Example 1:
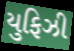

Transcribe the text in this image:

યુફિઝી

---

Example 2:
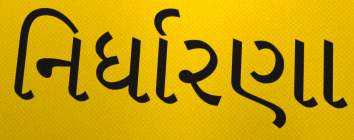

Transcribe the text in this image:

નિર્ધારણા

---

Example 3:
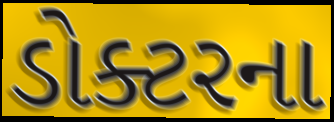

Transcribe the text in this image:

ડોક્ટરના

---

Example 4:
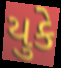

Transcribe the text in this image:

યુકે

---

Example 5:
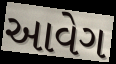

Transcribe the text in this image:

આવેગ